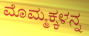
ಮೊಮ್ಮಕ್ಕಳನ್ನ